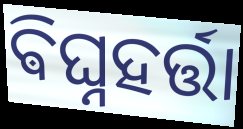
ଵିଘ୍ନହର୍ତ୍ତା